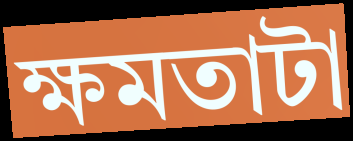
ক্ষমতাটা